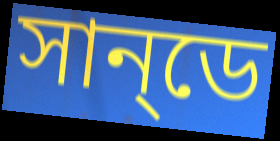
সান্‌ডে